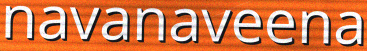
navanaveena